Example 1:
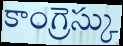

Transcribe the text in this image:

కాంగ్రెస్కు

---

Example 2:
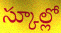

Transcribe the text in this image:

స్కూల్లో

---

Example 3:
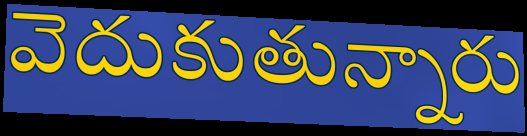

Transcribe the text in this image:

వెదుకుతున్నారు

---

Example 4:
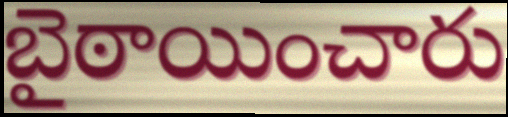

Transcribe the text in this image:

బైఠాయించారు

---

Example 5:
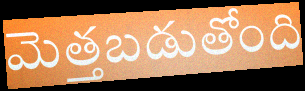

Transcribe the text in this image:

మెత్తబడుతోంది